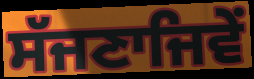
ਸੱਜਣਾਜਿਵੇਂ